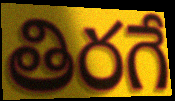
తిరగే